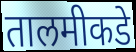
तालमीकडे